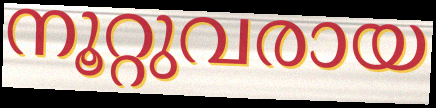
നൂറ്റുവരായ